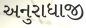
અનુરાધાજી